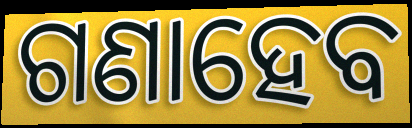
ଗଣାହେବ